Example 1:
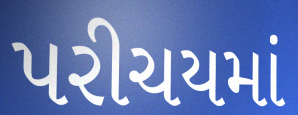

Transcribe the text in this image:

પરીચયમાં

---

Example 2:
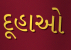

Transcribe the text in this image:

દૂહાઓ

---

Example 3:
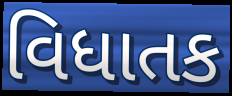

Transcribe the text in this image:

વિધાતક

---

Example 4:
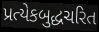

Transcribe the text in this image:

પ્રત્યેકબુદ્ધચરિત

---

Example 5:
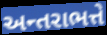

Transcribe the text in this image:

અન્તરાભત્તે